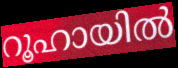
റൂഹായിൽ